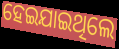
ହେଇଯାଇଥିଲେ